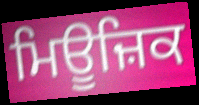
ਮਿਊਜ਼ਿਕ